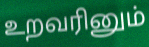
உறவரினும்